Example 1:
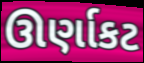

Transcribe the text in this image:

ઊર્ણાકટ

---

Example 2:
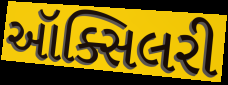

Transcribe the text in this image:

ઑક્સિલરી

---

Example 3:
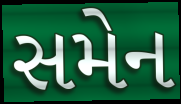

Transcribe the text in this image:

સમેન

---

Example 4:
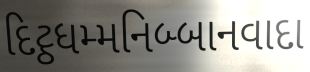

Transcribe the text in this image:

દિટ્ઠધમ્મનિબ્બાનવાદા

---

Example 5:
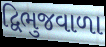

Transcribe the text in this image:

દ્વિભુજવાળા